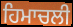
ਹਿਮਾਚਲੀ